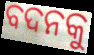
ବଦନକୁ